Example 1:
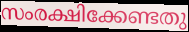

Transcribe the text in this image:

സംരക്ഷിക്കേണ്ടതു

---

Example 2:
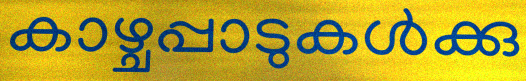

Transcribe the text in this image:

കാഴ്ചപ്പാടുകൾക്കു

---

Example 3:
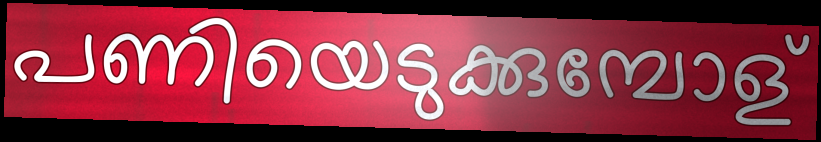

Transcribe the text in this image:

പണിയെടുക്കുമ്പോള്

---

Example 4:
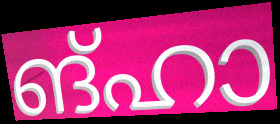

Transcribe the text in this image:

ങ്ഹാ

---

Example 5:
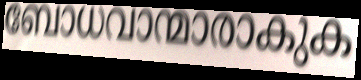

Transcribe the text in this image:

ബോധവാന്മാരാകുക